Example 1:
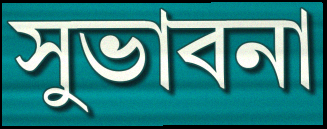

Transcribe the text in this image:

সুভাবনা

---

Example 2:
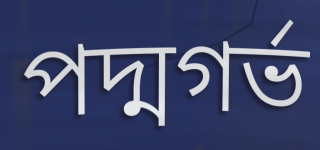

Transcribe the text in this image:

পদ্মগর্ভ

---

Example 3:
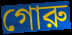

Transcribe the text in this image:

গোরু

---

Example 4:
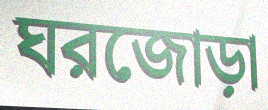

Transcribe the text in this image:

ঘরজোড়া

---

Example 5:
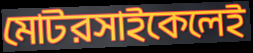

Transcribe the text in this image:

মোটরসাইকেলেই